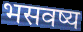
भसवष्य